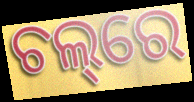
ଚଲ୍‌ରେ